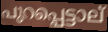
പുറപ്പെട്ടാല്